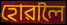
হোৱালৈ